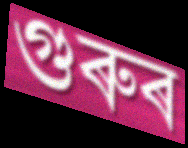
গুৰুৰ